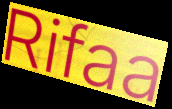
Rifaa